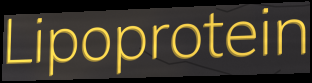
Lipoprotein